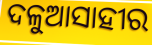
ଦଳୁଆସାହୀର